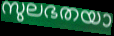
സുലഭതയാ